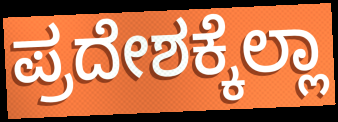
ಪ್ರದೇಶಕ್ಕೆಲ್ಲಾ